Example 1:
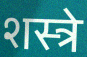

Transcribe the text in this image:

शस्त्रे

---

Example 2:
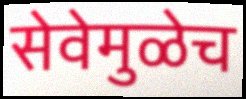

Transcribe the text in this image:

सेवेमुळेच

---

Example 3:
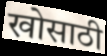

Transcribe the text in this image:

खोसाठी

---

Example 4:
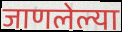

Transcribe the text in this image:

जाणलेल्या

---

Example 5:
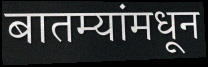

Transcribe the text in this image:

बातम्यांमधून